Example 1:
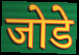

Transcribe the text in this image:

जोडे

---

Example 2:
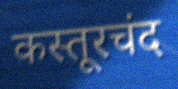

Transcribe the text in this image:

कस्तूरचंद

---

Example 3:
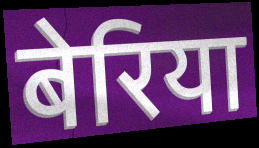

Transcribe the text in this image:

बेरिया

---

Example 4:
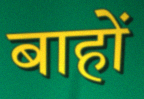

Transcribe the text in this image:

बाहों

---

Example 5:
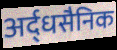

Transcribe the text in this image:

अर्द्धसैनिक